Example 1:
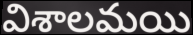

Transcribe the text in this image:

విశాలమయి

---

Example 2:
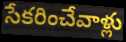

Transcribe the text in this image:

సేకరించేవాళ్లు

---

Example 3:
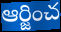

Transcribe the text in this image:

ఆర్జించ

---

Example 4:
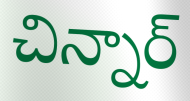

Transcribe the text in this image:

చిన్నార్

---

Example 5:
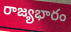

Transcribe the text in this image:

రాజ్యభారం